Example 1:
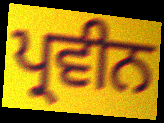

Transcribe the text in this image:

ਪ੍ਰਵੀਨ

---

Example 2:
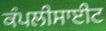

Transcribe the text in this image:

ਕੰਪਲੀਸਾਈਟ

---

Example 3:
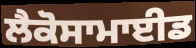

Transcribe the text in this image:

ਲੈਕੋਸਾਮਾਈਡ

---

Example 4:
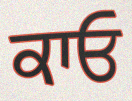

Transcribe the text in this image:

ਕਾਓ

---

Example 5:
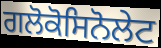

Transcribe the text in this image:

ਗਲੋਕੋਸਿਨੋਲੇਟ